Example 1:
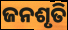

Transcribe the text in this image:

ଜନଶୃତି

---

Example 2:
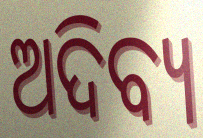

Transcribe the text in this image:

ଅଦିବ୍ୟ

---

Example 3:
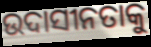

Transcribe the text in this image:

ଉଦାସୀନତାକୁ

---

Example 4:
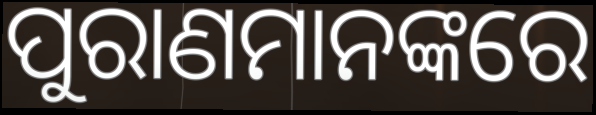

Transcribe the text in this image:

ପୁରାଣମାନଙ୍କରେ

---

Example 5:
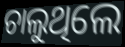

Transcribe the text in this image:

ଚାଲୁଥିଲେ